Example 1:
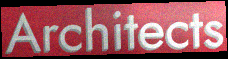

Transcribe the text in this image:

Architects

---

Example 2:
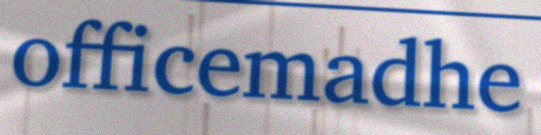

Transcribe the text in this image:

officemadhe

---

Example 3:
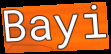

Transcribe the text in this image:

Bayi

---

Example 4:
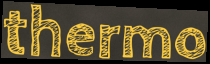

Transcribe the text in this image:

thermo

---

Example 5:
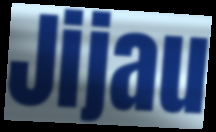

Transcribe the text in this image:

Jijau